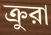
ক্রুরা